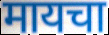
मायचा